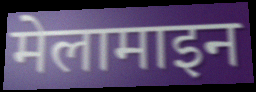
मेलामाइन